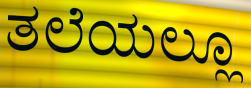
ತಲೆಯಲ್ಲೂ